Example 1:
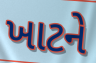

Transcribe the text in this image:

ખાટને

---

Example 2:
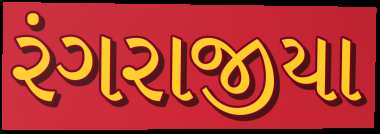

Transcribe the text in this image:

રંગરાજીયા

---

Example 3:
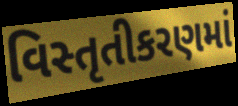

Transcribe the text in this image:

વિસ્તૃતીકરણમાં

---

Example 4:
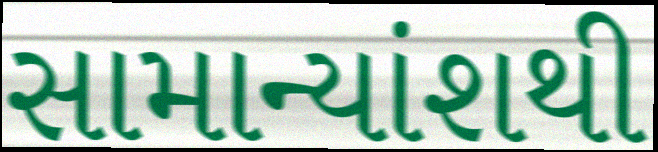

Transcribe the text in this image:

સામાન્યાંશથી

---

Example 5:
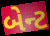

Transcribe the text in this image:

બેન્ટ